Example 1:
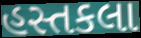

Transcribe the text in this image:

હસ્તકલા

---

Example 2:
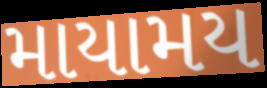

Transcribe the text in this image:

માયામય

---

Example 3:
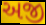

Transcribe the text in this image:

અજી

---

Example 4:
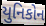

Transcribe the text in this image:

યુનિકોન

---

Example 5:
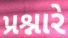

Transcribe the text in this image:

પ્રશ્નારે